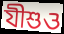
যীশুও